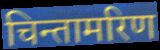
चिन्तामरिण